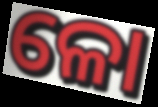
ଳୋ